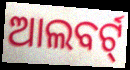
ଆଲବର୍ଟ୍